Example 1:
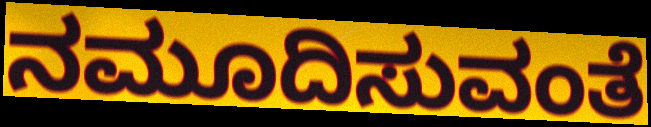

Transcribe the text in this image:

ನಮೂದಿಸುವಂತೆ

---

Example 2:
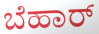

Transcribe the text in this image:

ಬೆಹಾರ್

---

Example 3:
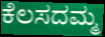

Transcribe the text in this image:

ಕೆಲಸದಮ್ಮ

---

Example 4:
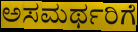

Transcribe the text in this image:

ಅಸಮರ್ಥರಿಗೆ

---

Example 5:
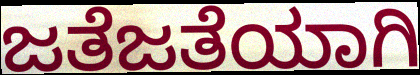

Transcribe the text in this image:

ಜತೆಜತೆಯಾಗಿ